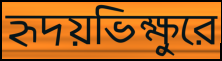
হৃদয়ভিক্ষুরে